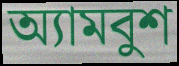
অ্যামবুশ